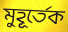
মুহূর্তেক